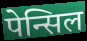
पेन्सिल